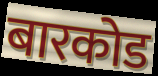
बारकोड